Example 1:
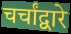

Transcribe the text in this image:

चर्चांद्वारे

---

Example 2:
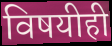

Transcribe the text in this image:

विषयीही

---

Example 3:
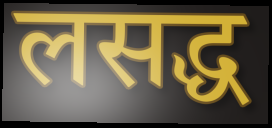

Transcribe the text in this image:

लसद्ध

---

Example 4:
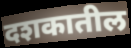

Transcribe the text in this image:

दशकातील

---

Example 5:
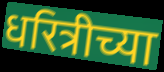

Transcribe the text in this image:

धरित्रीच्या